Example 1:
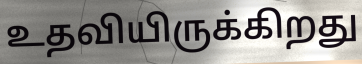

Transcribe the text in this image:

உதவியிருக்கிறது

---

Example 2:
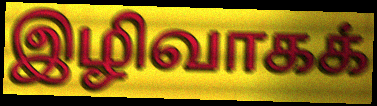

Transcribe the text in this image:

இழிவாகக்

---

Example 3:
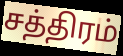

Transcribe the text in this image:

சத்திரம்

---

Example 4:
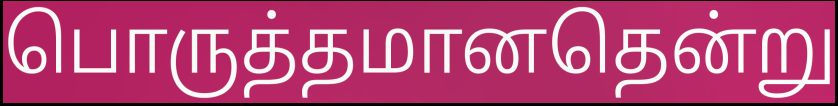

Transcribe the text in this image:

பொருத்தமானதென்று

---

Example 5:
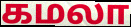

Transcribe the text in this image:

கமலா